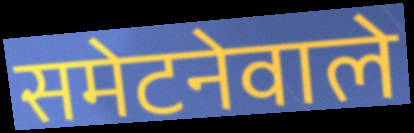
समेटनेवाले